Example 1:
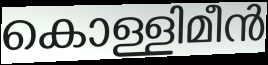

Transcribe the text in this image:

കൊള്ളിമീൻ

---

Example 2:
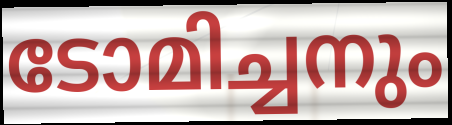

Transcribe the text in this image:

ടോമിച്ചനും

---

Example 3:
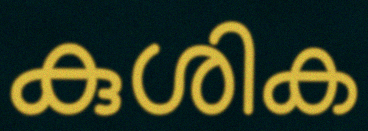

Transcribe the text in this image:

കുശിക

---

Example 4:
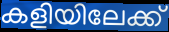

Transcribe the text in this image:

കളിയിലേക്ക്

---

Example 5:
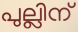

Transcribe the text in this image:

പുല്ലിന്